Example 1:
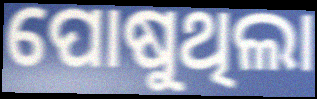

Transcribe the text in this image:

ପୋଷୁଥିଲା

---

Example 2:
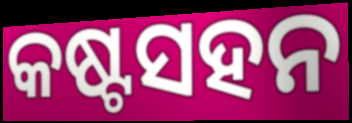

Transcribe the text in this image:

କଷ୍ଟସହନ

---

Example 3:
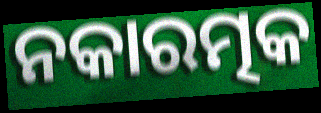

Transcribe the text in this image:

ନକାରତ୍ମକ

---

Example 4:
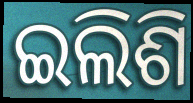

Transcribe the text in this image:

ଇଲିଶି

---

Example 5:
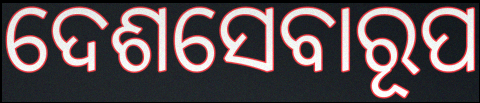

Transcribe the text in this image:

ଦେଶସେବାରୂପ